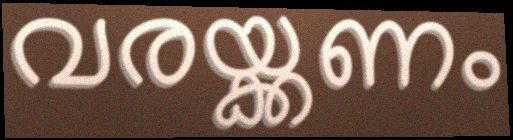
വരയ്ക്കണം